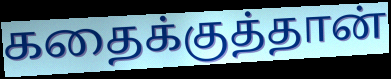
கதைக்குத்தான்